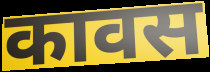
कावस